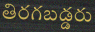
తిరగబడ్డరు